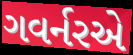
ગવર્નરએ